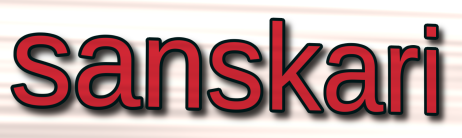
sanskari